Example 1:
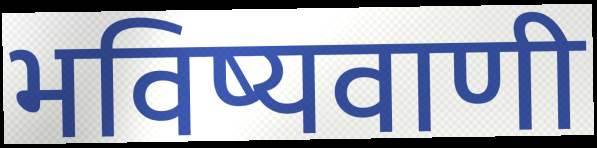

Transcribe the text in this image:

भविष्यवाणी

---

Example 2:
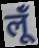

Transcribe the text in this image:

लूँ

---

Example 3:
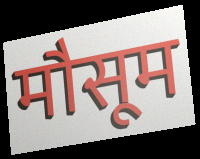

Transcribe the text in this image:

मौसूम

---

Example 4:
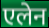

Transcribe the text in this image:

एलेन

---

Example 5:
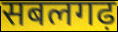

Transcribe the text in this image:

सबलगढ़